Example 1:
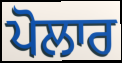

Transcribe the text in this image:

ਪੋਲਾਰ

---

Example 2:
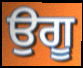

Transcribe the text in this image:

ਉਗੂ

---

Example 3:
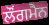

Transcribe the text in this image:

ਲੌਂਗਮੈਨ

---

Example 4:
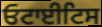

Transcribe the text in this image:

ਓਟਾਈਟਿਸ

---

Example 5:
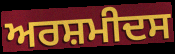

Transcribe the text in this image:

ਅਰਸ਼ਮੀਦਸ